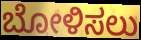
ಬೋಳಿಸಲು